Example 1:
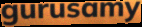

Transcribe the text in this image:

gurusamy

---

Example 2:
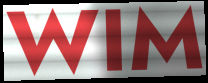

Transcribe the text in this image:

WIM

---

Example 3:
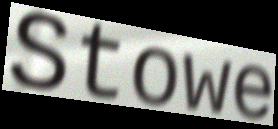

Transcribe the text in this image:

Stowe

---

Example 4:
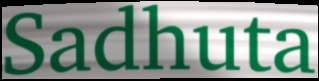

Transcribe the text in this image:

Sadhuta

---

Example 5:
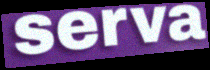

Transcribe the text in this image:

serva